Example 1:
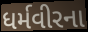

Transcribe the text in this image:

ધર્મવીરના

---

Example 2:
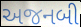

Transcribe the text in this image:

અજનબી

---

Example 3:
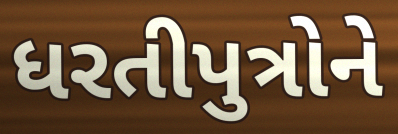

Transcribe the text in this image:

ધરતીપુત્રોને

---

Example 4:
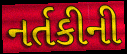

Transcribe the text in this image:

નર્તકીની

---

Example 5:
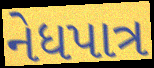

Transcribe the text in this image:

નેધપાત્ર